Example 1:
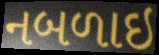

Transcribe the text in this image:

નબળાઇ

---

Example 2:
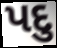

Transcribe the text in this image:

પદુ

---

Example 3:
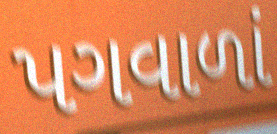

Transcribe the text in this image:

પગવાળાં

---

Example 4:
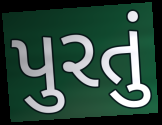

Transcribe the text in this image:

પુરતું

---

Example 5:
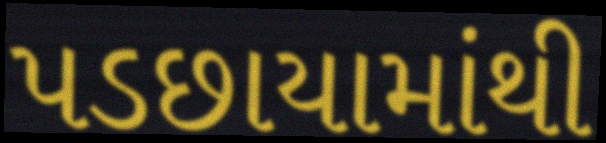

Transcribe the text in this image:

પડછાયામાંથી